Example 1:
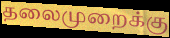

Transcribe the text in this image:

தலைமுறைக்கு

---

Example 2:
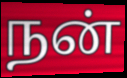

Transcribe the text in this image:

நன்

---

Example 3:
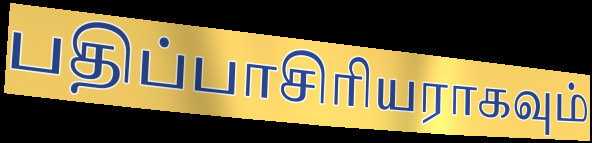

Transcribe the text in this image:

பதிப்பாசிரியராகவும்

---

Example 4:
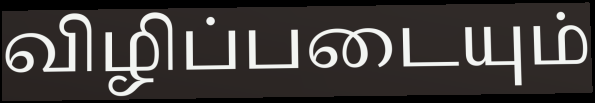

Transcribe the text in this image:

விழிப்படையும்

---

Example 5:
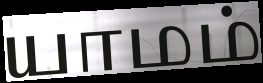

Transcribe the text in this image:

யாமம்